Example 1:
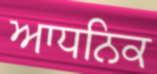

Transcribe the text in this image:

ਆਧਨਿਕ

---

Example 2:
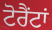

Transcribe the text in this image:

ਟੋਰੈਂਟਾਂ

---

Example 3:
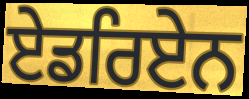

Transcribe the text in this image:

ਏਡਰਿਏਨ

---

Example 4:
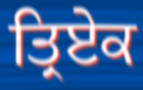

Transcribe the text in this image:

ਤ੍ਰਿਏਕ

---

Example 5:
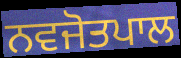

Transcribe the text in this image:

ਨਵਜੋਤਪਾਲ